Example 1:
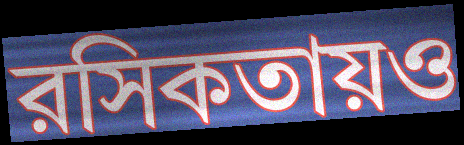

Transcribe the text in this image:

রসিকতায়ও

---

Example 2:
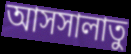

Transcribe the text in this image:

আসসালাতু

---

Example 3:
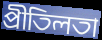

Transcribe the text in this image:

প্রীতিলতা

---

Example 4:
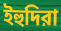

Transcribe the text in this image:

ইহুদিরা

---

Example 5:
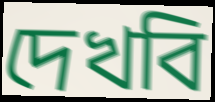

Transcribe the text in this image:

দেখবি